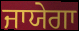
ਜਾਯੇਗਾ